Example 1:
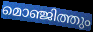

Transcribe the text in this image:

മൊഞ്ജിത്തും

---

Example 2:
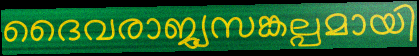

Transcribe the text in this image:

ദൈവരാജ്യസങ്കല്പമായി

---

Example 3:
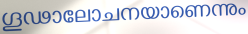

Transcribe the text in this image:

ഗൂഢാലോചനയാണെന്നും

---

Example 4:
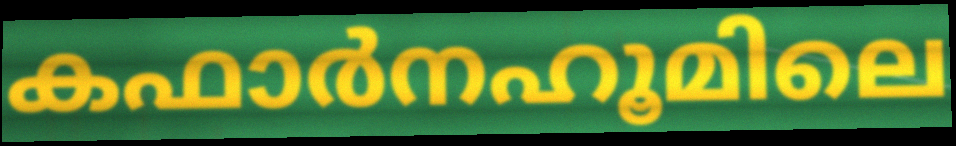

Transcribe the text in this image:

കഫാർനഹൂമിലെ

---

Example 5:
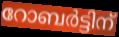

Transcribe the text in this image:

റോബർട്ടിന്